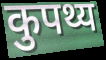
कुपथ्य